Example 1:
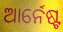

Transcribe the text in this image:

ଆର୍ନେଷ୍ଟ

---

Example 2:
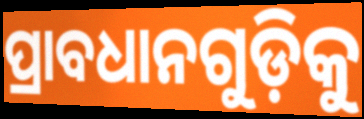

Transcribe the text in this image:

ପ୍ରାବଧାନଗୁଡ଼ିକୁ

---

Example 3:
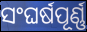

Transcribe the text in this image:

ସଂଘର୍ଷପୂର୍ଣ୍ଣ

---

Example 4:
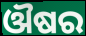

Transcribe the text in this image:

ଔଷର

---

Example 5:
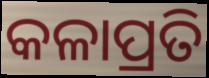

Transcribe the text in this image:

କଳାପ୍ରତି